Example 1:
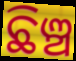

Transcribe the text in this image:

ଛିଞ୍ଚ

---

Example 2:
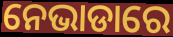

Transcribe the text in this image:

ନେଭାଡାରେ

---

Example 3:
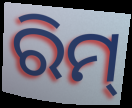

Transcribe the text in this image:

ରିମ୍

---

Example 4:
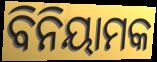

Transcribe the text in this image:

ବିନିୟାମକ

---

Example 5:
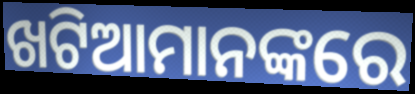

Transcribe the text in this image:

ଖଟିଆମାନଙ୍କରେ